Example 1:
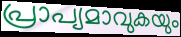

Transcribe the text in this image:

പ്രാപ്യമാവുകയും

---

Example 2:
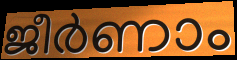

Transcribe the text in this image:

ജീർണാം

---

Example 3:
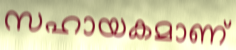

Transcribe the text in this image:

സഹായകമാണ്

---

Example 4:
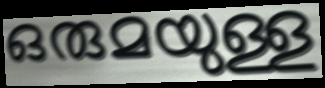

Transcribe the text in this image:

ഒരുമയുള്ള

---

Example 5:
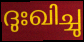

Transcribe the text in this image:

ദുഃഖിച്ചു